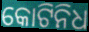
କୋଟିନିଧ